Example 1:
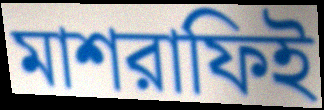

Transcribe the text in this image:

মাশরাফিই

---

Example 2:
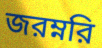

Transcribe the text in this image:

জরম্নরি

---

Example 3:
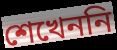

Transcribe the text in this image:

শেখেননি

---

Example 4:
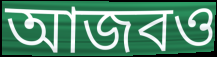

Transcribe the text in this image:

আজবও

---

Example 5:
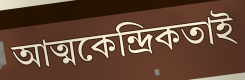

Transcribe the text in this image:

আত্মকেন্দ্রিকতাই